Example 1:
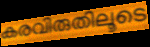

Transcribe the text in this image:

കരവിരുതിലൂടെ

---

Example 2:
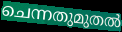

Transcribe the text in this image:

ചെന്നതുമുതൽ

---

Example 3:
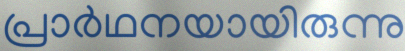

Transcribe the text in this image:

പ്രാർഥനയായിരുന്നു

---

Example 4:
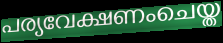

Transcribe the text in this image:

പര്യവേക്ഷണംചെയ്ത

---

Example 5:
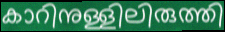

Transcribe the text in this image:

കാറിനുള്ളിലിരുത്തി